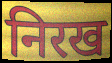
निरख